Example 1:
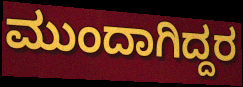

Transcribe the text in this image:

ಮುಂದಾಗಿದ್ದರ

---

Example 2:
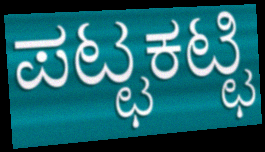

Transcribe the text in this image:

ಪಟ್ಟಕಟ್ಟಿ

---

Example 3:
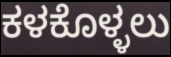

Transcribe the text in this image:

ಕಳಕೊಳ್ಳಲು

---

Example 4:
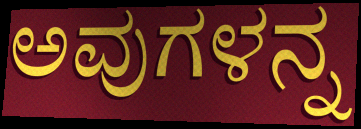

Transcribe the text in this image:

ಅವುಗಳನ್ನ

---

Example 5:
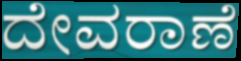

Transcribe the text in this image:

ದೇವರಾಣೆ